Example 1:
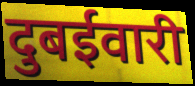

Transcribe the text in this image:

दुबईवारी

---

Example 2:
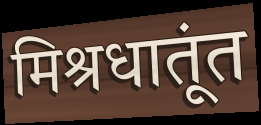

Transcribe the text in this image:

मिश्रधातूंत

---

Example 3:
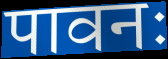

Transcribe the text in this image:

पावनः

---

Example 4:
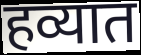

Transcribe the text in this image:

हव्‍यात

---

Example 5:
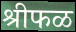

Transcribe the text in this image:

श्रीफळ